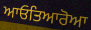
ਆਓਤਿਆਰੋਆ